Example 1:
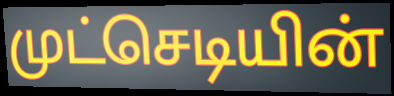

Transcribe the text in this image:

முட்செடியின்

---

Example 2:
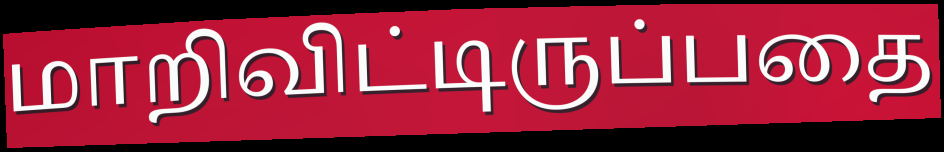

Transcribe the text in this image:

மாறிவிட்டிருப்பதை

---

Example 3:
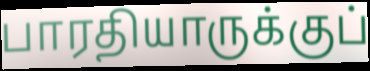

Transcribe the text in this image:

பாரதியாருக்குப்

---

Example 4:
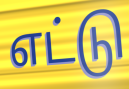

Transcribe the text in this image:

எட்டு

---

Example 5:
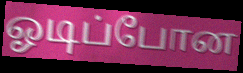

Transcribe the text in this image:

ஓடிப்போன